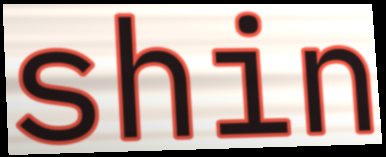
shin